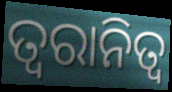
ତ୍ୱରାନିତ୍ଵ